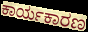
ಕಾರ್ಯಕಾರಣ